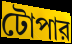
টোপার